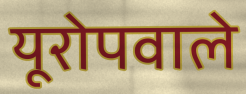
यूरोपवाले